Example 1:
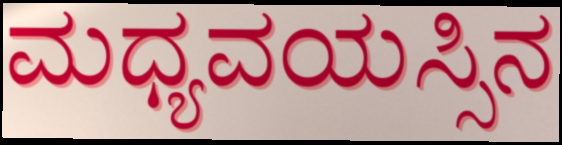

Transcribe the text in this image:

ಮಧ್ಯವಯಸ್ಸಿನ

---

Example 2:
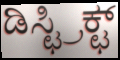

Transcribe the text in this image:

ಡಿಸ್ಟ್ರಿಕ್ಟ್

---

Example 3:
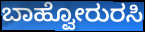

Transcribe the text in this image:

ಬಾಹ್ವೋರುರಸಿ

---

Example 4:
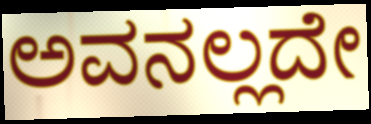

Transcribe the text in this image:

ಅವನಲ್ಲದೇ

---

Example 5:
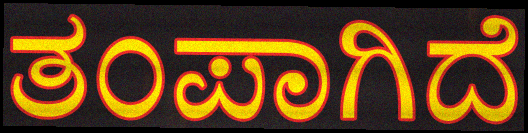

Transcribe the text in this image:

ತಂಪಾಗಿದೆ